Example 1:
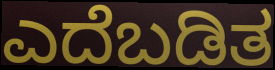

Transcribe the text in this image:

ಎದೆಬಡಿತ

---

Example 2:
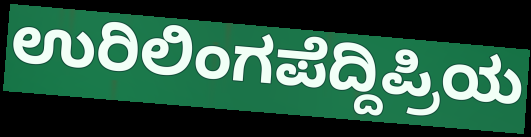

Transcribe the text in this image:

ಉರಿಲಿಂಗಪೆದ್ದಿಪ್ರಿಯ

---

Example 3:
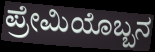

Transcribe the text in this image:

ಪ್ರೇಮಿಯೊಬ್ಬನ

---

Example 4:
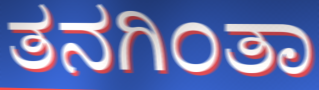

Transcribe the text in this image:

ತನಗಿಂತಾ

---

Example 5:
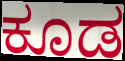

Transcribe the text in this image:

ಕೂಡ